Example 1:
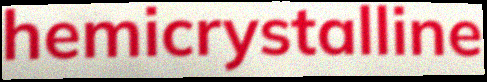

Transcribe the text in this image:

hemicrystalline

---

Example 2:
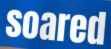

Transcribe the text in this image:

soared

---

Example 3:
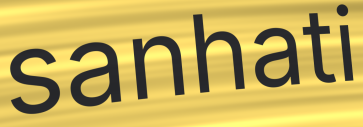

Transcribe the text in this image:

sanhati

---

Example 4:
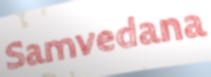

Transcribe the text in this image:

Samvedana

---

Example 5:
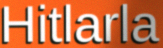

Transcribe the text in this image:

Hitlarla